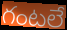
గంటలే